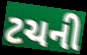
ટચની